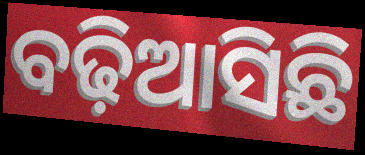
ବଢ଼ିଆସିଛି